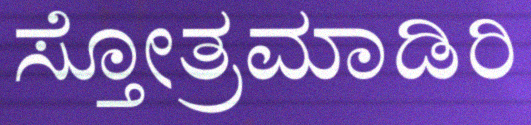
ಸ್ತೋತ್ರಮಾಡಿರಿ